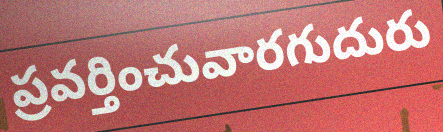
ప్రవర్తించువారగుదురు